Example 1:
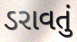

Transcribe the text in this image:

ડરાવતું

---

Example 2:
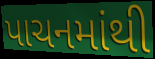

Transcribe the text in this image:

પાચનમાંથી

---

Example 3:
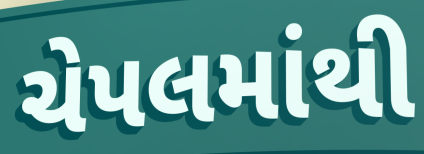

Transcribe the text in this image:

ચેપલમાંથી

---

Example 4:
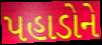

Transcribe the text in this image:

પહાડોને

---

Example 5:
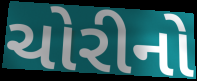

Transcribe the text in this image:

ચોરીનો